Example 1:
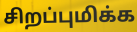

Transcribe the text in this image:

சிறப்புமிக்க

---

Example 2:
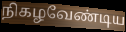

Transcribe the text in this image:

நிகழவேண்டிய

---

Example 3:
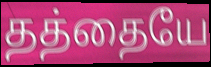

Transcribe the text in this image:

தத்தையே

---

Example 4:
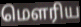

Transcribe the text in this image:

மௌரிய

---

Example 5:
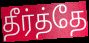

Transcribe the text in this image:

தீர்த்தே